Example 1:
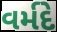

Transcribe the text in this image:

વર્મદે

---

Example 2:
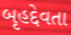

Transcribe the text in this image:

બૃહદ્દેવતા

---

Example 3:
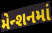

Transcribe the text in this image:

મેન્શનમાં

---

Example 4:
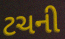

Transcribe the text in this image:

ટચની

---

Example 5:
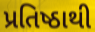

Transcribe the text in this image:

પ્રતિષ્ઠાથી